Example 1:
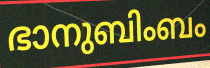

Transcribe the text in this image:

ഭാനുബിംബം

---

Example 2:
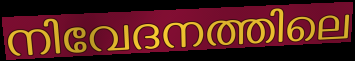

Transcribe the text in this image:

നിവേദനത്തിലെ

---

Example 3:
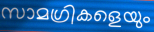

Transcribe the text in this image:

സാമഗ്രികളെയും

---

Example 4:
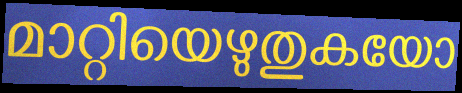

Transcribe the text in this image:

മാറ്റിയെഴുതുകയോ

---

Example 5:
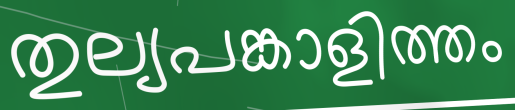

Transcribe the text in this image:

തുല്യപങ്കാളിത്തം